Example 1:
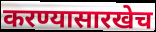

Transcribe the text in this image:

करण्यासारखेच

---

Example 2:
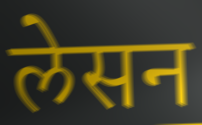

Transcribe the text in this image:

लेसन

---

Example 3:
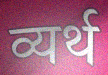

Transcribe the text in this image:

व्यर्थ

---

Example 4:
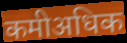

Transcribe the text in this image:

कमीअधिक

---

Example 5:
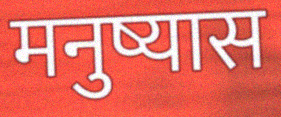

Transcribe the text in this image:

मनुष्यास